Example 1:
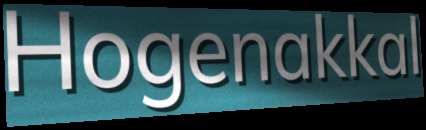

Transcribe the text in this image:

Hogenakkal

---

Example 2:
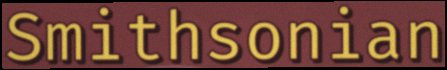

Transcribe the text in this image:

Smithsonian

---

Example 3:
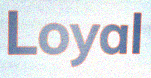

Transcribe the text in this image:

Loyal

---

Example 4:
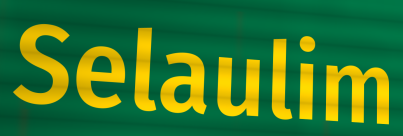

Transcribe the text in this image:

Selaulim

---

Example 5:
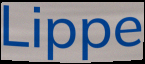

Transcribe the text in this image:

Lippe